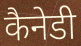
कैनेडी